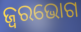
ଜ୍ୱରଭୋଗ